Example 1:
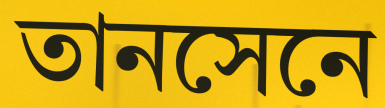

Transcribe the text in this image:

তানসেনে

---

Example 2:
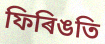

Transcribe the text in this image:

ফিৰিঙতি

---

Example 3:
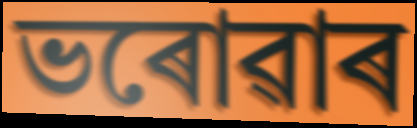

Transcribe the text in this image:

ভৰোৱাৰ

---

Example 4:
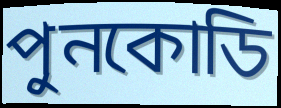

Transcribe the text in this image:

পুনকোডি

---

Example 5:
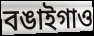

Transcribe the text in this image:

বঙাইগাও